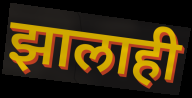
झालाही